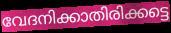
വേദനിക്കാതിരിക്കട്ടെ